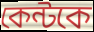
কেন্টকে